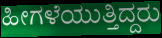
ಹೀಗಳೆಯುತ್ತಿದ್ದರು